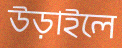
উড়াইলে